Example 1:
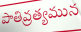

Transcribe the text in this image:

పాతివ్రత్యమున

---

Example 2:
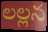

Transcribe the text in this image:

లల్లన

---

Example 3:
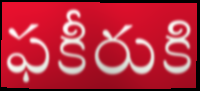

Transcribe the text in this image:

ఫకీరుకి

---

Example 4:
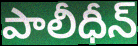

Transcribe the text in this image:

పాలీధీన్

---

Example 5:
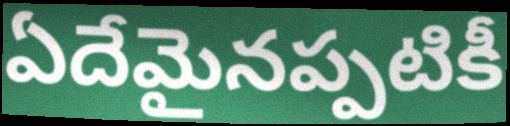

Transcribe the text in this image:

ఏదేమైనప్పటికీ